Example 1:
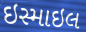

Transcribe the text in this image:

ઇસ્માઇલ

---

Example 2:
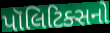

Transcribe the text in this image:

પૉલિટિક્સનો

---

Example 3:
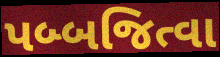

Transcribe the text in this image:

પબ્બજિત્વા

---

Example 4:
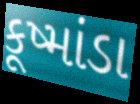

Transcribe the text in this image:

કૂષ્માંડા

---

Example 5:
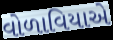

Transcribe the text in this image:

વોળાવિયાએ